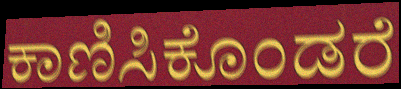
ಕಾಣಿಸಿಕೊಂಡರೆ